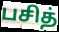
பசித்